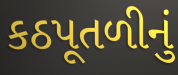
કઠપૂતળીનું